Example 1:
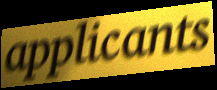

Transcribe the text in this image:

applicants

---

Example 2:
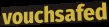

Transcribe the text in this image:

vouchsafed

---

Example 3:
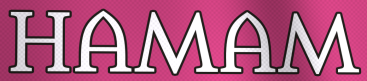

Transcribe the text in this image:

HAMAM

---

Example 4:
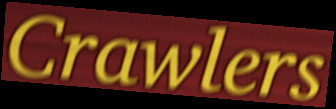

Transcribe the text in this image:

Crawlers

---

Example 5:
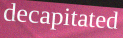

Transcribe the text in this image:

decapitated